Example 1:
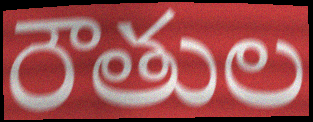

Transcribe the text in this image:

రౌతుల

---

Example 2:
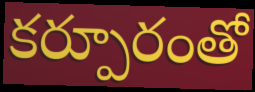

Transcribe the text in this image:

కర్పూరంతో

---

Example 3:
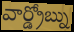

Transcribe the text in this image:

వార్డ్రోబ్ను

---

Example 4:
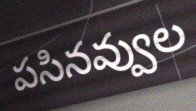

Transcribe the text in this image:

పసినవ్వుల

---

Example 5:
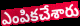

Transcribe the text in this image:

ఎంపికచేశారు